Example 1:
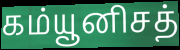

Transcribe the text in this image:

கம்யூனிசத்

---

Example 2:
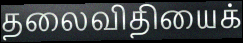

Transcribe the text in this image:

தலைவிதியைக்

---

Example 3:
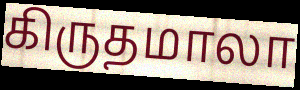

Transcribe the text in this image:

கிருதமாலா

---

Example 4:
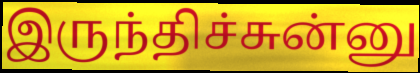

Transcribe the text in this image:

இருந்திச்சுன்னு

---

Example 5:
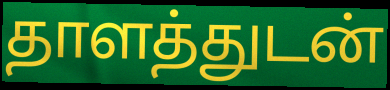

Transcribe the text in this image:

தாளத்துடன்